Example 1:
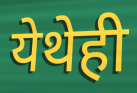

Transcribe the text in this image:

येथेही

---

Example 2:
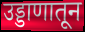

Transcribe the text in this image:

उड्डाणातून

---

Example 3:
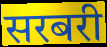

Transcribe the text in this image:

सरबरी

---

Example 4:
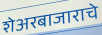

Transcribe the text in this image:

शेअरबाजाराचे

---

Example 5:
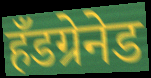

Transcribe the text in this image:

हँडग्रेनेड